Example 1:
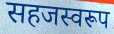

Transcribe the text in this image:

सहजस्वरूप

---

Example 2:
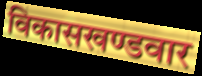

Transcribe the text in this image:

विकासखण्‍डवार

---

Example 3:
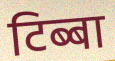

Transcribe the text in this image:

टिब्बा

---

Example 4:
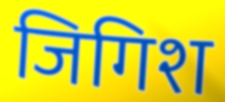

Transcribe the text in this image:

जिगिश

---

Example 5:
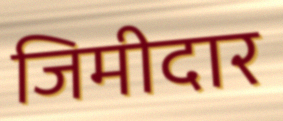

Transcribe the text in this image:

जिमीदार